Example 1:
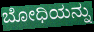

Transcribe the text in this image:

ಬೋಧಿಯನ್ನು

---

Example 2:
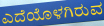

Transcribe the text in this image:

ಎದೆಯೊಳಗಿರುವ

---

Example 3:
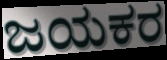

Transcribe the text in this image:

ಜಯಕರ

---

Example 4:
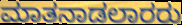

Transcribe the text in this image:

ಮಾತನಾಡಲಾರರು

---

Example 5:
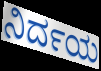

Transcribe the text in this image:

ನಿರ್ದಯ